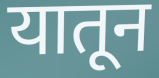
यातून